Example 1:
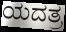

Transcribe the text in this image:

ಯದತ್ರ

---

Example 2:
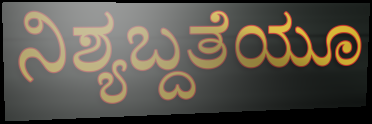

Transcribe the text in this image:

ನಿಶ್ಯಬ್ದತೆಯೂ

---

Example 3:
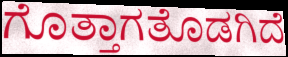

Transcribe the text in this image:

ಗೊತ್ತಾಗತೊಡಗಿದೆ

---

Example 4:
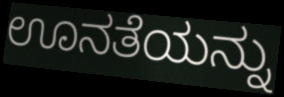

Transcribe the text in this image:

ಊನತೆಯನ್ನು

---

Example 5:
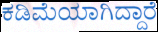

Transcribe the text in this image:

ಕಡಿಮೆಯಾಗಿದ್ದಾರೆ